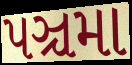
પઞ્ચમા